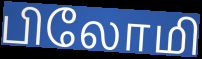
பிலோமி